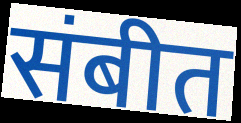
संबीत